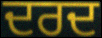
ਦਰਦ